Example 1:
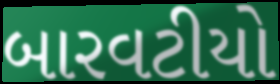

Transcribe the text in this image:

બારવટીયો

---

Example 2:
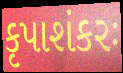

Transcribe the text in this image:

કૃપાશંકરઃ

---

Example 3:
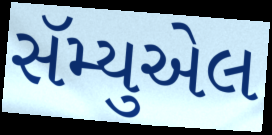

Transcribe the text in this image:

સૅમ્યુએલ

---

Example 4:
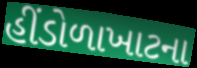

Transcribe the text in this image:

હીંડોળાખાટના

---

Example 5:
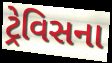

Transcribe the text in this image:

ટ્રેવિસના